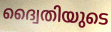
ദ്വൈതിയുടെ